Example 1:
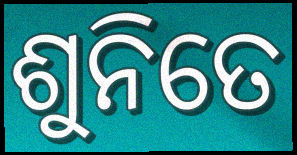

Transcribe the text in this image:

ଶୁନିତେ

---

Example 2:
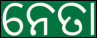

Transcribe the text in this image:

ନେତା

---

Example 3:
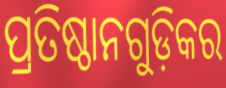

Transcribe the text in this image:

ପ୍ରତିଷ୍ଠାନଗୁଡ଼ିକର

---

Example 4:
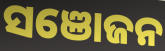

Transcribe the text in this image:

ସଞୋଜନ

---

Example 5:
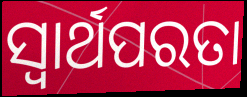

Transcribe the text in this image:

ସ୍ବାର୍ଥପରତା